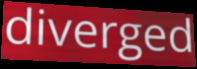
diverged